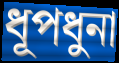
ধূপধুনা